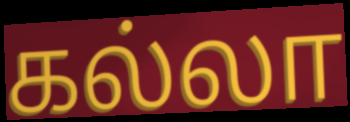
கல்லா